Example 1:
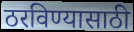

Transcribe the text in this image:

ठरविण्यासाठी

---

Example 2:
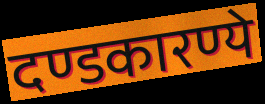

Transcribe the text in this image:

दण्डकारण्ये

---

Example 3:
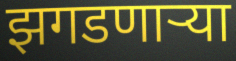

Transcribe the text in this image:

झगडणाऱ्या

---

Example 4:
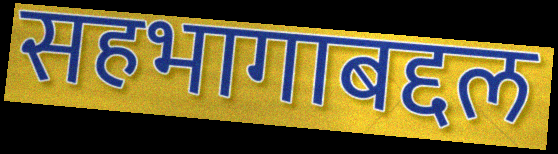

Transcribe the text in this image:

सहभागाबद्दल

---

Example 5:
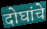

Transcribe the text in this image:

दोघांचे